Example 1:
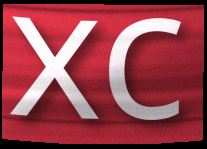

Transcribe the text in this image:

xc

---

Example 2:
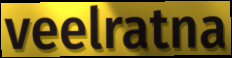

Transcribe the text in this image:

veelratna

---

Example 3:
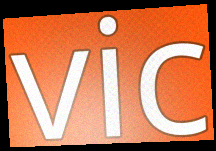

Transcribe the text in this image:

vic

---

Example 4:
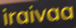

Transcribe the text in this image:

iraivaa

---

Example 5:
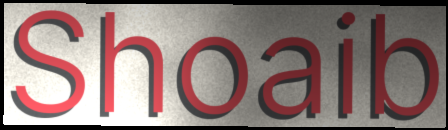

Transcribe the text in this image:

Shoaib